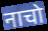
नाचो